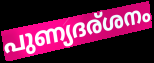
പുണ്യദര്ശനം